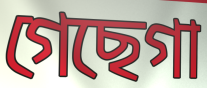
গেছেগা